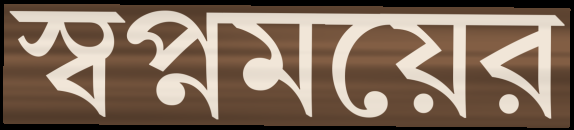
স্বপ্নময়ের